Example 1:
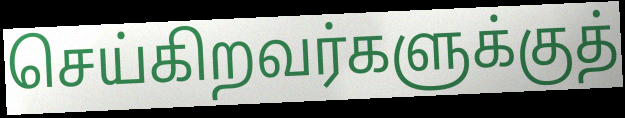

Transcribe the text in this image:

செய்கிறவர்களுக்குத்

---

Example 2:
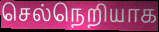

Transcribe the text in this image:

செல்நெறியாக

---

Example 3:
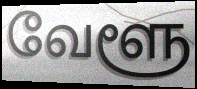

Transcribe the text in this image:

வேளூ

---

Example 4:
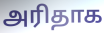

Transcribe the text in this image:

அரிதாக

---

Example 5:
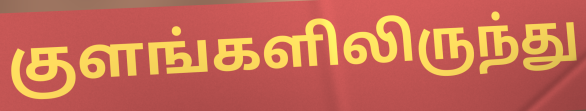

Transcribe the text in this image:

குளங்களிலிருந்து